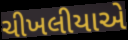
ચીખલીયાએ